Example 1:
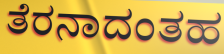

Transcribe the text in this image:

ತೆರನಾದಂತಹ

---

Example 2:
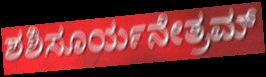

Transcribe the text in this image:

ಶಶಿಸೂರ್ಯನೇತ್ರಮ್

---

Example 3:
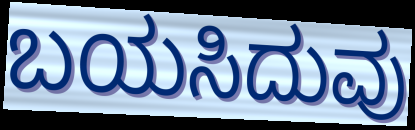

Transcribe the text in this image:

ಬಯಸಿದುವು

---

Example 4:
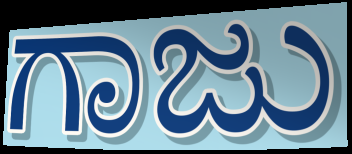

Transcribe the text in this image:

ಗಾಜು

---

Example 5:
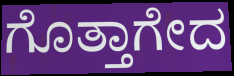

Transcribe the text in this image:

ಗೊತ್ತಾಗೇದ